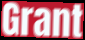
Grant